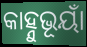
କାହ୍ନୁଭୂୟାଁ